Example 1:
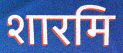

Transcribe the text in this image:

शारमि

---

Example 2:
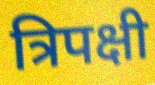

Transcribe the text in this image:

त्रिपक्षी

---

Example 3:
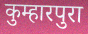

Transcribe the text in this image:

कुम्हारपुरा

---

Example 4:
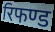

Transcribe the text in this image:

रिफण्ड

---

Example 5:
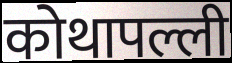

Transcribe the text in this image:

कोथापल्ली